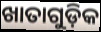
ଖାତାଗୁଡ଼ିକ